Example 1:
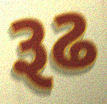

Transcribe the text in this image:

રૂઢ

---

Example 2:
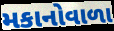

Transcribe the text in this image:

મકાનોવાળા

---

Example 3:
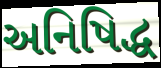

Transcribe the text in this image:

અનિષિદ્ધ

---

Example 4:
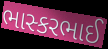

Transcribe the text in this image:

ભાસ્કરભાઈ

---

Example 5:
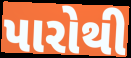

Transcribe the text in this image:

પારોથી